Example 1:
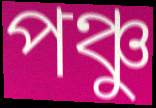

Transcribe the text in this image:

পঞ্চু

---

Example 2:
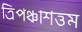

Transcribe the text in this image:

ত্রিপঞ্চাশত্তম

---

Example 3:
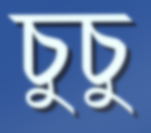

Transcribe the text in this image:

চুচু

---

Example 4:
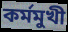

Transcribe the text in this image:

কর্মমুখী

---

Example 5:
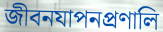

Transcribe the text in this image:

জীবনযাপনপ্রণালি